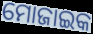
ମୋଜାଇକ